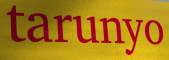
tarunyo